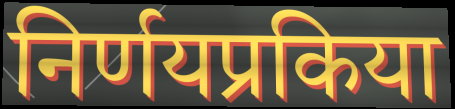
निर्णयप्रकिया